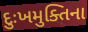
દુઃખમુક્તિના